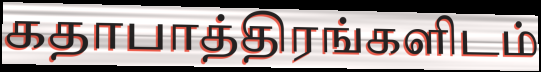
கதாபாத்திரங்களிடம்